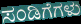
ಸಂಡಿಗೆಗಳು